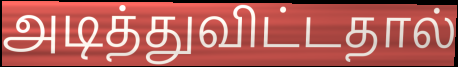
அடித்துவிட்டதால்